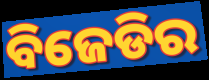
ବିଜେଡିର